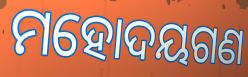
ମହୋଦୟଗଣ